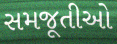
સમજૂતીઓ